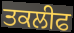
ਤਕਲੀਫ